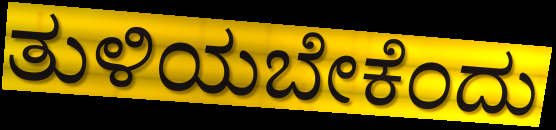
ತುಳಿಯಬೇಕೆಂದು